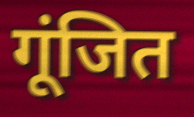
गूंजित